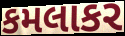
કમલાકર